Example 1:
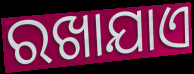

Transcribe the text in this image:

ରଖାଯାଏ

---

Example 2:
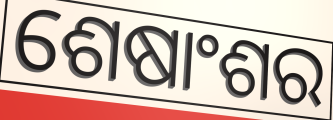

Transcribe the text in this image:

ଶେଷାଂଶର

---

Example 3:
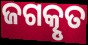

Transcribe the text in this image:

ଜଗତ୍କୃତ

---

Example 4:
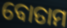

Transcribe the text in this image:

ବୋତାମ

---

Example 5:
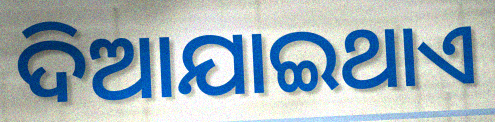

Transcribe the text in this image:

ଦିଆଯାଇଥାଏ